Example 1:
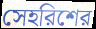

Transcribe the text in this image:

সেহরিশের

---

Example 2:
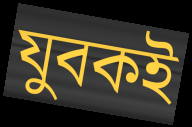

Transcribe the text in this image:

যুবকই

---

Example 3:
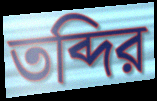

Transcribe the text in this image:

তব্দির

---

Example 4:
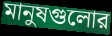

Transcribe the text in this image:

মানুষগুলোর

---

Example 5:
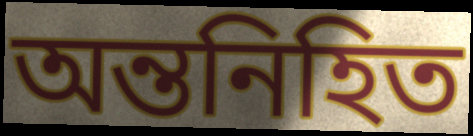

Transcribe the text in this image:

অন্তনিহিত